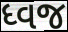
ધ્વજ